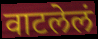
वाटलेलं